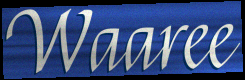
Waaree